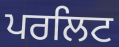
ਪਰਲਿਟ